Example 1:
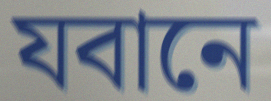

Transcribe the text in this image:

যবানে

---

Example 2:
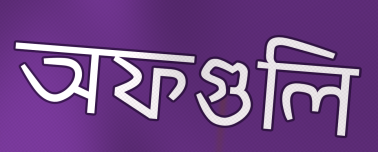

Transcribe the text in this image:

অফগুলি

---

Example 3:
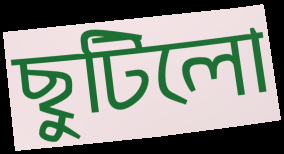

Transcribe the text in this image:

ছুটিলো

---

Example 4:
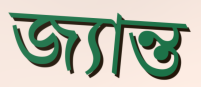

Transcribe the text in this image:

জ্যান্ত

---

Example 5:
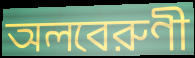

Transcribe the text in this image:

অলবেরুণী